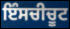
ਇੰਸਚੀਚੂਟ